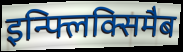
इन्फ्लिक्सिमैब